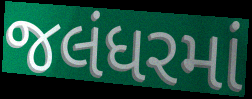
જલંધરમાં